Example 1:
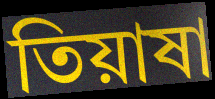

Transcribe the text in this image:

তিয়াষা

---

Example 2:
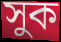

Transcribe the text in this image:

সুক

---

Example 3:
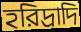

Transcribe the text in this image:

হরিদ্রাদি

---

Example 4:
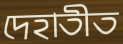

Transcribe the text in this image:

দেহাতীত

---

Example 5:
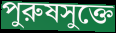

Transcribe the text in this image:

পুরুষসুক্তে